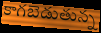
కాగబెడుతున్న